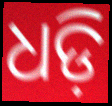
ଧଡ଼ି